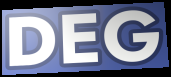
DEG